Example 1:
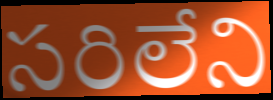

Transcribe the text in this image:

సరిలేని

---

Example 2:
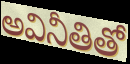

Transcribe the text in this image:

అవినీతితో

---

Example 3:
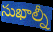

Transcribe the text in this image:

సుఖాల్నీ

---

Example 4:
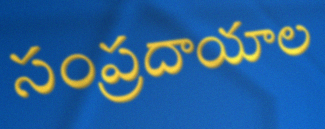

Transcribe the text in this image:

సంప్రదాయాల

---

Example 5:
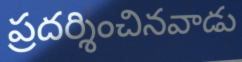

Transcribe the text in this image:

ప్రదర్శించినవాడు